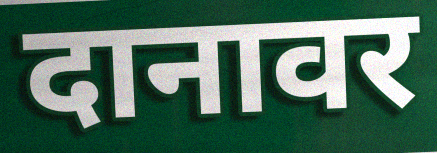
दानावर